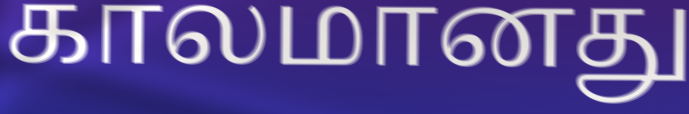
காலமானது